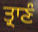
ਤ੍ਰਾਣੰ